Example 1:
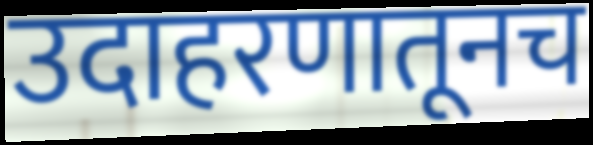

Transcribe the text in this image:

उदाहरणातूनच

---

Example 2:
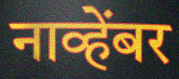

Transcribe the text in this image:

नाव्हेंबर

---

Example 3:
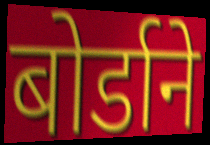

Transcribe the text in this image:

बोर्डाने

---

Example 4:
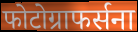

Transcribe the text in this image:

फोटोग्राफर्सना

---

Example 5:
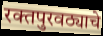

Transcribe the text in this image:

रक्तपुरवठ्याचे